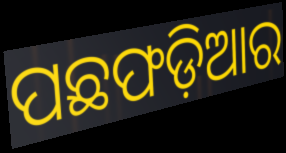
ପଛଫଡ଼ିଆର